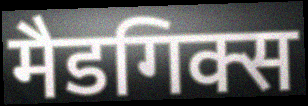
मैडगिक्स